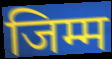
जिम्म